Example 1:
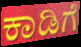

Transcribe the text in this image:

ಕಾಡಿಗೆ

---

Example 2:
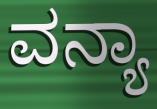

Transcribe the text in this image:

ವನ್ಯಾ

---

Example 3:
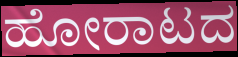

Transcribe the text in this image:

ಹೋರಾಟದ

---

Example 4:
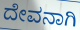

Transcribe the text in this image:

ದೇವನಾಗಿ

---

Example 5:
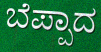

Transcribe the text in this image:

ಬೆಪ್ಪಾದ